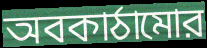
অবকাঠামোর